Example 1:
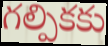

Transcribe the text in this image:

గల్పికకు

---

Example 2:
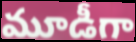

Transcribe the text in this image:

మూడీగా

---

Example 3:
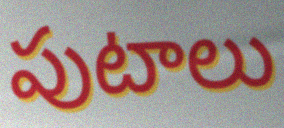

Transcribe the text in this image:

పుటాలు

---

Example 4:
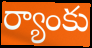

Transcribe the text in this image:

ర్యాంకు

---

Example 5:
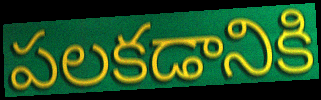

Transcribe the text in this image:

పలకడానికి